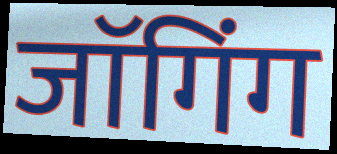
जॉगिंग